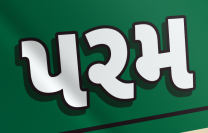
પરમ